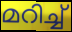
മറിച്ച്